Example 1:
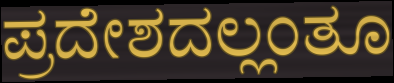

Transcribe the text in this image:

ಪ್ರದೇಶದಲ್ಲಂತೂ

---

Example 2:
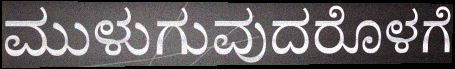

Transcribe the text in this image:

ಮುಳುಗುವುದರೊಳಗೆ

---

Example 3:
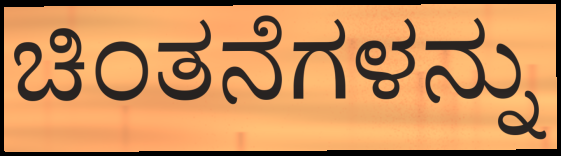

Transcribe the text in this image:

ಚಿಂತನೆಗಳನ್ನು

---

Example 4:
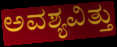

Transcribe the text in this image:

ಅವಶ್ಯವಿತ್ತು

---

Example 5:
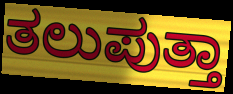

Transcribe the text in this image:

ತಲುಪುತ್ತಾ